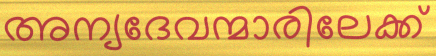
അന്യദേവന്മാരിലേക്ക്